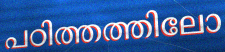
പഠിത്തത്തിലോ